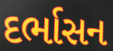
દર્ભાસન